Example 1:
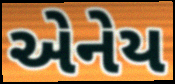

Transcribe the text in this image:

એનેય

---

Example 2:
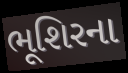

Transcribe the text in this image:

ભૂશિરના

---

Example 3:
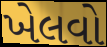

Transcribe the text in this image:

ખેલવો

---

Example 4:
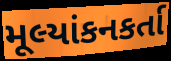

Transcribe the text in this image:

મૂલ્યાંકનકર્તા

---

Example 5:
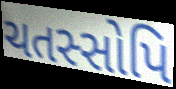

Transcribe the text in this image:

ચતસ્સોપિ